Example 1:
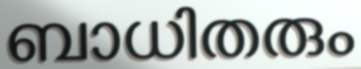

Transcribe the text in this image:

ബാധിതരും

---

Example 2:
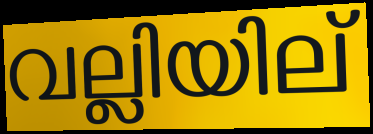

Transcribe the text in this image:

വല്ലിയില്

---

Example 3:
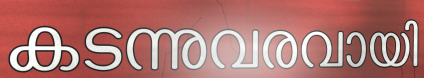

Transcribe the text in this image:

കടന്നുവരവായി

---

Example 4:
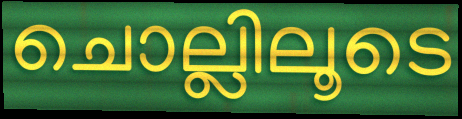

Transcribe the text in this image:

ചൊല്ലിലൂടെ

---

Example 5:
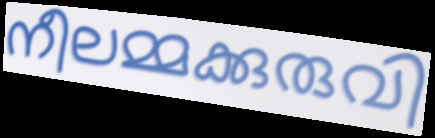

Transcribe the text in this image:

നീലമ്മക്കുരുവി